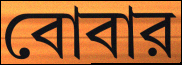
বোবার